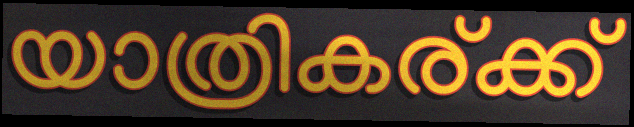
യാത്രികര്ക്ക്